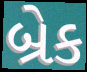
બ્રેક